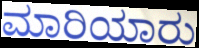
ಮಾರಿಯಾರು